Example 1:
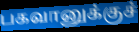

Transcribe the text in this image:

பகவானுக்குச்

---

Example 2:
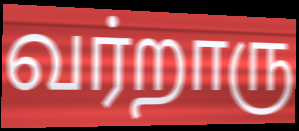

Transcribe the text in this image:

வர்றாரு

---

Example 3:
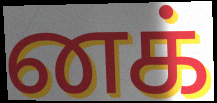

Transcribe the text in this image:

னக்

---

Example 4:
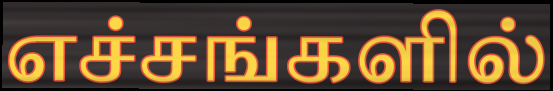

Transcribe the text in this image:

எச்சங்களில்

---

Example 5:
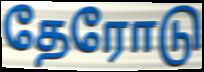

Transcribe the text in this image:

தேரோடு